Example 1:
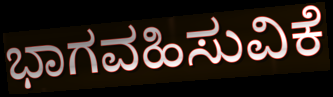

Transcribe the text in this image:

ಭಾಗವಹಿಸುವಿಕೆ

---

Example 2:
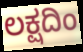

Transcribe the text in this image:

ಲಕ್ಷದಿಂ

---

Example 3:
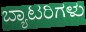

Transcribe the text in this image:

ಬ್ಯಾಟರಿಗಳು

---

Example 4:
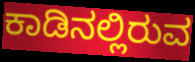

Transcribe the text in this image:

ಕಾಡಿನಲ್ಲಿರುವ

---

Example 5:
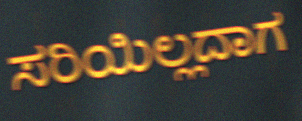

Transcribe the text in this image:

ಸರಿಯಿಲ್ಲದಾಗ